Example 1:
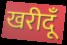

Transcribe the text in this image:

खरीदूँ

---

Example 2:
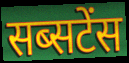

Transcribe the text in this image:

सब्सटेंस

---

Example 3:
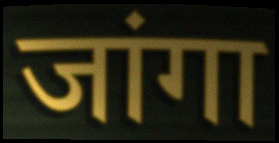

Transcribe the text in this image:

जांगा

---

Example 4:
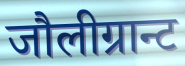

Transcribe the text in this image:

जौलीग्रान्ट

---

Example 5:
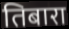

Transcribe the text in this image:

तिबारा